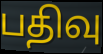
பதிவு